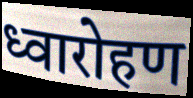
ध्वारोहण